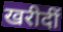
खरीदीं